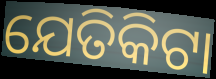
ଯେତିକିଟା